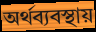
অর্থব্যবস্থায়